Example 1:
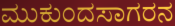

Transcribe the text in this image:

ಮುಕುಂದಸಾಗರನ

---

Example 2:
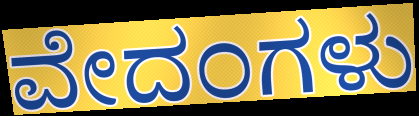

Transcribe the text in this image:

ವೇದಂಗಳು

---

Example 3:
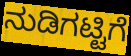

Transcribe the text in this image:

ನುಡಿಗಟ್ಟಿಗೆ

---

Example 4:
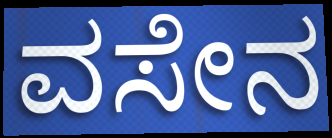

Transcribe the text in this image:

ವಸೇನ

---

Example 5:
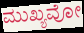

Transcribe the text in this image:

ಮುಖ್ಯವೋ